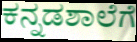
ಕನ್ನಡಶಾಲೆಗೆ